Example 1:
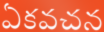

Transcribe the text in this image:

ఏకవచన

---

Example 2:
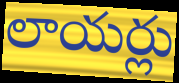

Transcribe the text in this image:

లాయర్లు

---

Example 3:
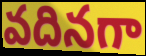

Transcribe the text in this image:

వదినగా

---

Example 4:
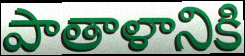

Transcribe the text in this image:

పాతాళానికి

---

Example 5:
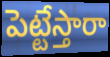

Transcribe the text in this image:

పెట్టేస్తారా